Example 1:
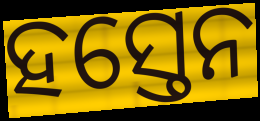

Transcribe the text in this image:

ହସ୍ତେନ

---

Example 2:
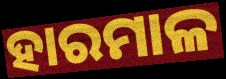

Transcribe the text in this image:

ହାରମାଳ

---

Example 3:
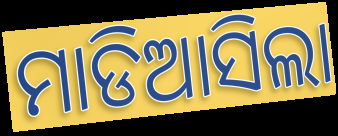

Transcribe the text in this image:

ମାଡିଆସିଲା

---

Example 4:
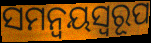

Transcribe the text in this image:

ସମନ୍ୱୟସ୍ୱରୂପ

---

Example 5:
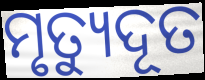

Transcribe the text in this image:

ମୃତ୍ୟୁଦୂତ